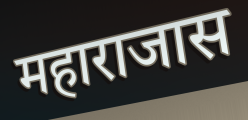
महाराजास